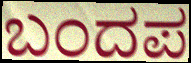
ಬಂದಪ